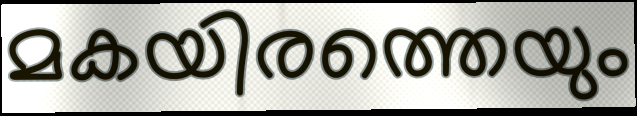
മകയിരത്തെയും